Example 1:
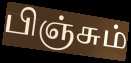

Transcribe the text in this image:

பிஞ்சும்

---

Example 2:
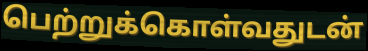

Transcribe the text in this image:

பெற்றுக்கொள்வதுடன்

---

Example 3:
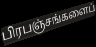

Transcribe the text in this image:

பிரபஞ்சங்களைப்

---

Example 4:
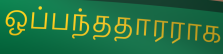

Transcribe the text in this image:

ஒப்பந்ததாரராக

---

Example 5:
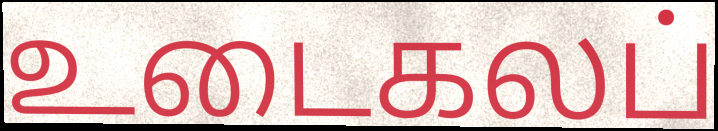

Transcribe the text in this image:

உடைகலப்